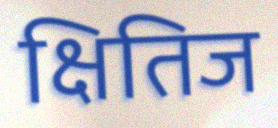
क्षितिज